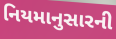
નિયમાનુસારની